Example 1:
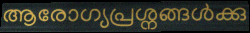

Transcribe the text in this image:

ആരോഗ്യപ്രശ്നങ്ങൾക്കു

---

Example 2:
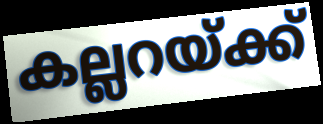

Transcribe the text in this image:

കല്ലറയ്ക്ക്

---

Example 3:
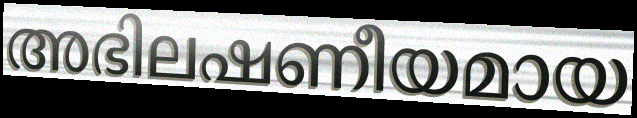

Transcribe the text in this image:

അഭിലഷണീയമായ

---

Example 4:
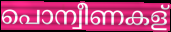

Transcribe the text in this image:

പൊന്വീണകള്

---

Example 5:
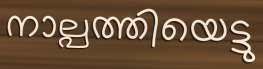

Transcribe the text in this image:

നാല്പത്തിയെട്ടു